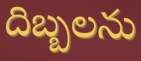
దిబ్బలను